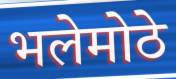
भलेमोठे